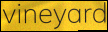
vineyard